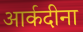
आर्कदीना